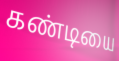
கண்டியை